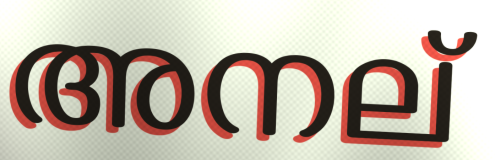
അനല്